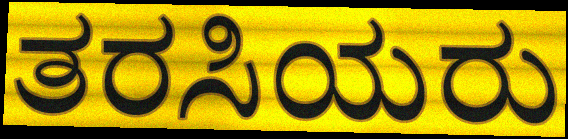
ತರಸಿಯರು